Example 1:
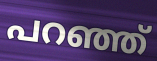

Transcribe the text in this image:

പറഞ്ഞ്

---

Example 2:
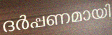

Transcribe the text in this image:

ദർപ്പണമായി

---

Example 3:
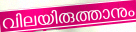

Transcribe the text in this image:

വിലയിരുത്താനും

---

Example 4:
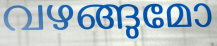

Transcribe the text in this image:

വഴങ്ങുമോ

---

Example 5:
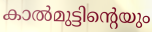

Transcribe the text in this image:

കാൽമുട്ടിന്റെയും